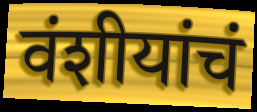
वंशीयांचं